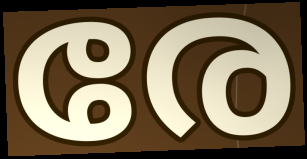
രേ